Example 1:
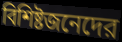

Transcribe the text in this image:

বিশিষ্টজনেদের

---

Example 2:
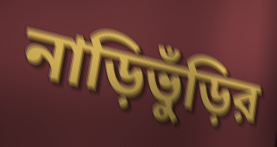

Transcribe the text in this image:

নাড়িভুঁড়ির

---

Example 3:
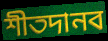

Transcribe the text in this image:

শীতদানব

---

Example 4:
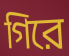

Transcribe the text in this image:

গিরে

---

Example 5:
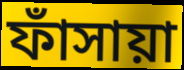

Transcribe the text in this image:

ফাঁসায়া